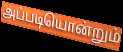
அப்படியொன்றும்